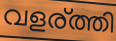
വളര്ത്തി